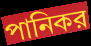
পানিকর